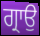
ਗ੍ਰਾਉ